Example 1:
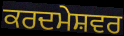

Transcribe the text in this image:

ਕਰਦਮੇਸ਼ਵਰ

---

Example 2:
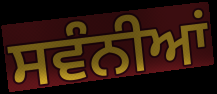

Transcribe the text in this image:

ਸਵੰਨੀਆਂ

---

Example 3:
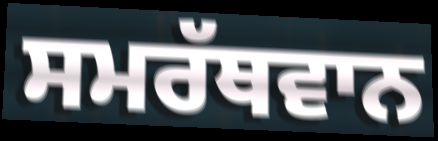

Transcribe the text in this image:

ਸਮਰੱਥਵਾਨ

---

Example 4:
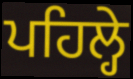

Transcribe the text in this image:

ਪਹਿਲ੍ਹੇ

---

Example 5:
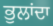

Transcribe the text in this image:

ਭੁਲਾਂਦਾ